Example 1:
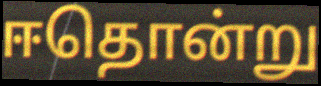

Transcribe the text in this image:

ஈதொன்று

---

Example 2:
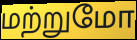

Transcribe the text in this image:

மற்றுமோ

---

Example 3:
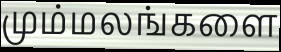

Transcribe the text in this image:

மும்மலங்களை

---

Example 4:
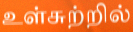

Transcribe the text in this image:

உள்சுற்றில்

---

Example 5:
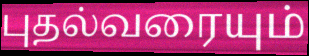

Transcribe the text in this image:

புதல்வரையும்